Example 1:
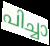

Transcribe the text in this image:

പിച്ചാ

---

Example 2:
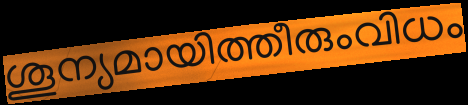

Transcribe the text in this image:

ശൂന്യമായിത്തീരുംവിധം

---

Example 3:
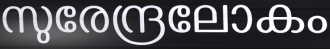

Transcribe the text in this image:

സുരേന്ദ്രലോകം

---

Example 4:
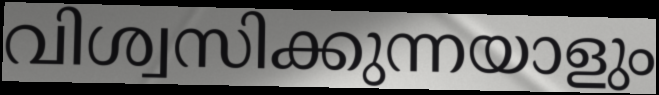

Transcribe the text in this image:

വിശ്വസിക്കുന്നയാളും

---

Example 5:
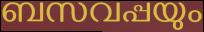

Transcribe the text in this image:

ബസവപ്പയും